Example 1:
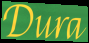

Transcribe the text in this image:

Dura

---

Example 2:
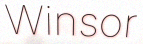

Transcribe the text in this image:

Winsor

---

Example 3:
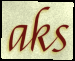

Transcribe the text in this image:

aks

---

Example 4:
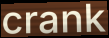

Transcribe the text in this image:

crank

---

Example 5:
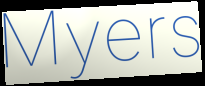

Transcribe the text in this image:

Myers